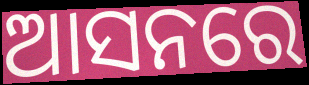
ଆସନରେ